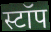
स्टॉप